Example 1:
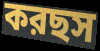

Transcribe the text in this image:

করছস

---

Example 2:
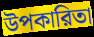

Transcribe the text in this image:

উপকারিতা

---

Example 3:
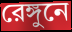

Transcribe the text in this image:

রেঙ্গুনে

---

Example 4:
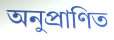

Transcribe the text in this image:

অনুপ্রাণিত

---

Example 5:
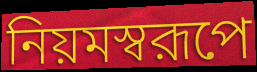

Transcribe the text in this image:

নিয়মস্বরূপে